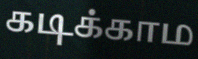
கடிக்காம